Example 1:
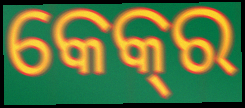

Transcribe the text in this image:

କେକ୍‌ର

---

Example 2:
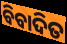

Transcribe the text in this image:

ବିବାଦିତ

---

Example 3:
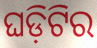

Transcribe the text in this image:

ଘଡ଼ିଟିର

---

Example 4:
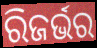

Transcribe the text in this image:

ରିଜର୍ଭର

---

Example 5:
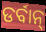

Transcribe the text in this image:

ଡର୍ବାନ୍